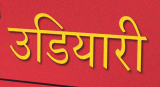
उडियारी